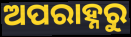
ଅପରାହ୍ନରୁ